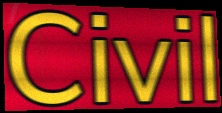
Civil